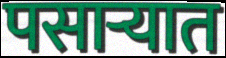
पसार्‍यात